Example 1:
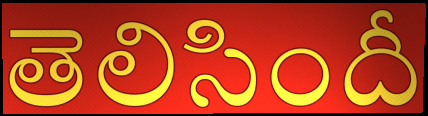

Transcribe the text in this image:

తెలిసిందీ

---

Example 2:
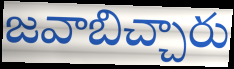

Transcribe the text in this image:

జవాబిచ్చారు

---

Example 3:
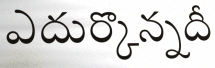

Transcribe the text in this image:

ఎదుర్కొన్నదీ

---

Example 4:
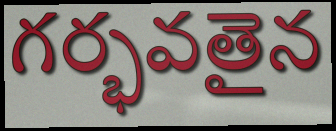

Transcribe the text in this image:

గర్భవతైన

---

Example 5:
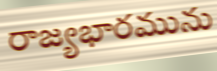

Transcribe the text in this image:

రాజ్యభారమును